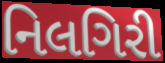
નિલગિરી